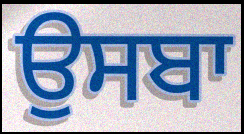
ਉਸਬਾ